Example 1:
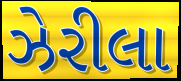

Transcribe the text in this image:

ઝેરીલા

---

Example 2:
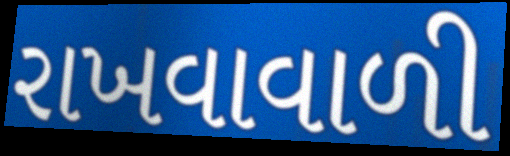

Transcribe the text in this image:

રાખવાવાળી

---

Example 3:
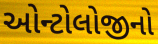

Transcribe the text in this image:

ઓન્ટોલોજીનો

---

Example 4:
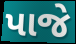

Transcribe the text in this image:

પાજે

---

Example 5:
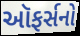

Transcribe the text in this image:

ઑફર્સનો